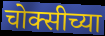
चोक्सीच्या